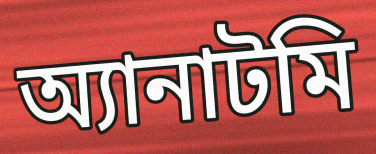
অ্যানাটমি